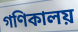
গণিকালয়